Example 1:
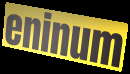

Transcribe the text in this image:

eninum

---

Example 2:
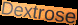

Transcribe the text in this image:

Dextrose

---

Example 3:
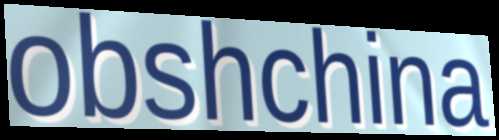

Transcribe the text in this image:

obshchina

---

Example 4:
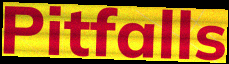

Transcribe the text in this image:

Pitfalls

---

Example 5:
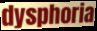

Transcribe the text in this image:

dysphoria